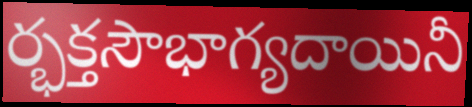
ర్భక్తసౌభాగ్యదాయినీ